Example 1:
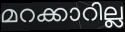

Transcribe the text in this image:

മറക്കാറില്ല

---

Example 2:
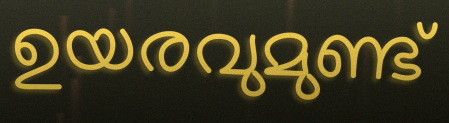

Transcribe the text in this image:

ഉയരവുമുണ്ട്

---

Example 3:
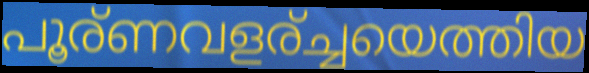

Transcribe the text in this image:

പൂര്ണവളര്ച്ചയെത്തിയ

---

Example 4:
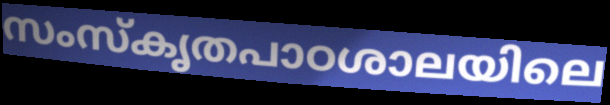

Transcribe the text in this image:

സംസ്കൃതപാഠശാലയിലെ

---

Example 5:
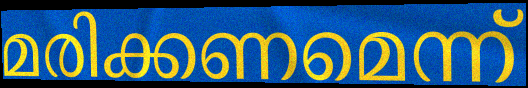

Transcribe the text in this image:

മരിക്കണമെന്ന്